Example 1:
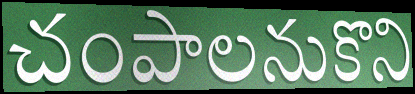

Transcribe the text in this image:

చంపాలనుకొని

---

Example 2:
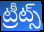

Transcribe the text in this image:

ట్రీట్స్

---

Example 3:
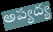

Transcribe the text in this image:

అప్యద్య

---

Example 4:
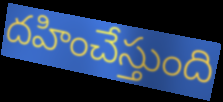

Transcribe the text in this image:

దహించేస్తుంది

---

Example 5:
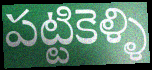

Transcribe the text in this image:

పట్టికెళ్ళి